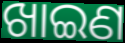
ଖାଇଣ